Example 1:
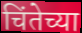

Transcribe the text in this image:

चिंतेच्या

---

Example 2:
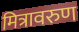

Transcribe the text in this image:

मित्रावरुण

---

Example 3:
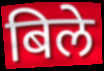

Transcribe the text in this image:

बिले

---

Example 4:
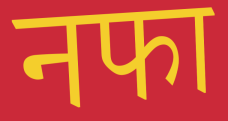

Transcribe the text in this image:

नफा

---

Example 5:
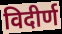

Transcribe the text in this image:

विदीर्ण